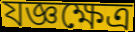
যজ্ঞক্ষেত্র